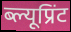
ब्ल्यूप्रिंट